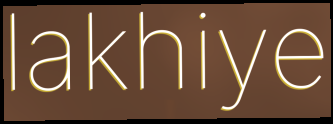
lakhiye